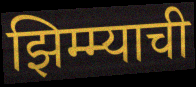
झिम्म्याची